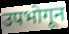
उपभोगून